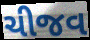
ચીજવ